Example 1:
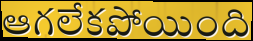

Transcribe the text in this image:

ఆగలేకపోయింది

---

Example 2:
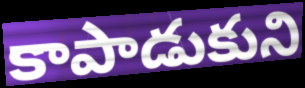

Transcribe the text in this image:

కాపాడుకుని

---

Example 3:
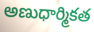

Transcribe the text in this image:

అణుధార్మికత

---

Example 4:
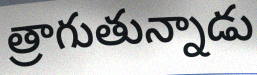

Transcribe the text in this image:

త్రాగుతున్నాడు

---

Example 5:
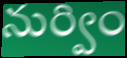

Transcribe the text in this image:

నుర్విం